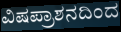
ವಿಷಪ್ರಾಶನದಿಂದ